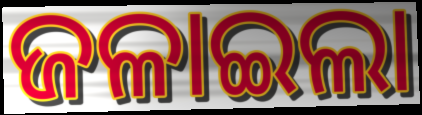
ଜଳାଇଲା